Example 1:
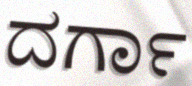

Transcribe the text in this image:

ದರ್ಗಾ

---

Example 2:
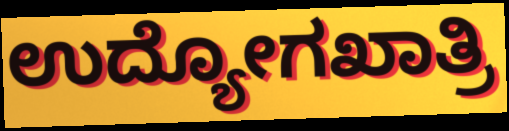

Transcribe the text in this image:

ಉದ್ಯೋಗಖಾತ್ರಿ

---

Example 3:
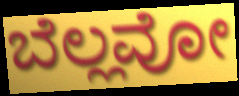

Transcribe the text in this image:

ಬೆಲ್ಲವೋ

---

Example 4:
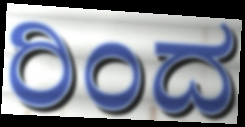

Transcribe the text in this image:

ರಿಂದ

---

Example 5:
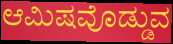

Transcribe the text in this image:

ಆಮಿಷವೊಡ್ಡುವ